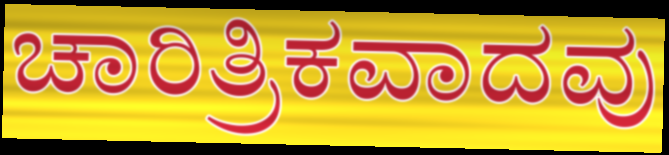
ಚಾರಿತ್ರಿಕವಾದವು